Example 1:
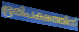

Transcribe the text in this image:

ഭൂരിപക്ഷത്തിന്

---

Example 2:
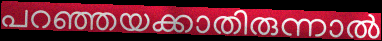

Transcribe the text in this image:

പറഞ്ഞയക്കാതിരുന്നാൽ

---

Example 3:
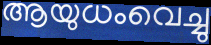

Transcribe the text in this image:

ആയുധംവെച്ചു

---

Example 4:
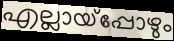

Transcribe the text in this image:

എല്ലായ്പ്പോഴും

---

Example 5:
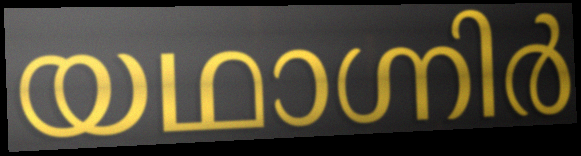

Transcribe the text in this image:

യഥാഗ്നിർ